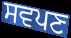
ਸਵਪਣ